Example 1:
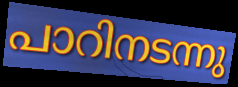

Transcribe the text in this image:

പാറിനടന്നു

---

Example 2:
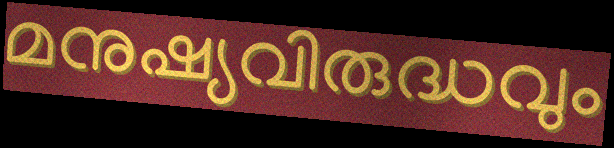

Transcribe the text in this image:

മനുഷ്യവിരുദ്ധവും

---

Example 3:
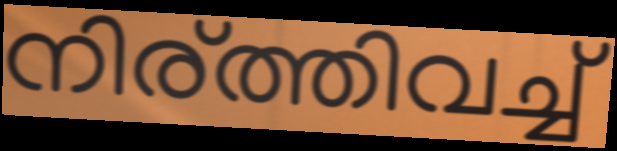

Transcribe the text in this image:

നിര്ത്തിവച്ച്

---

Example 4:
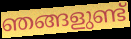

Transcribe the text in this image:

ഞങ്ങളുണ്ട്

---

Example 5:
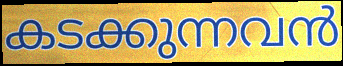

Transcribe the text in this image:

കടക്കുന്നവൻ